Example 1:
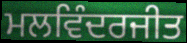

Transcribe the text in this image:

ਮਲਵਿੰਦਰਜੀਤ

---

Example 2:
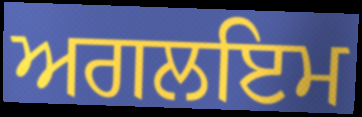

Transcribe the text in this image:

ਅਗਲਇਮ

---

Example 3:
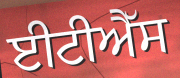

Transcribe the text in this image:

ਈਟੀਐੱਸ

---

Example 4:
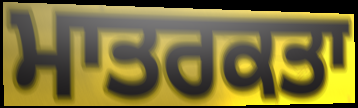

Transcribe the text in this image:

ਮਾਤਰਕਤਾ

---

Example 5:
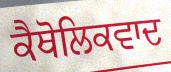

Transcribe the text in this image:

ਕੈਥੋਲਿਕਵਾਦ